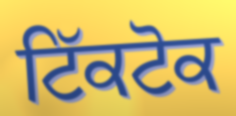
ਟਿੱਕਟੋਕ